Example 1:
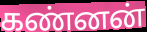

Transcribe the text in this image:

கண்னன்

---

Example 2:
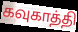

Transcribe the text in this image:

கவுகாத்தி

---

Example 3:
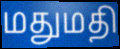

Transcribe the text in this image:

மதுமதி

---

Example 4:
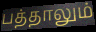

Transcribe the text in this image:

பத்தாலும்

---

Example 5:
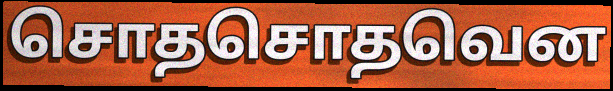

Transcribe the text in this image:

சொதசொதவென